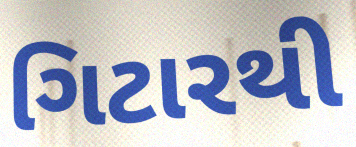
ગિટારથી